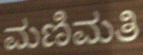
ಮಣಿಮತಿ